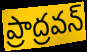
ప్రాద్రవన్